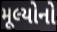
મૂલ્યોનો